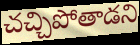
చచ్చిపోతాడని